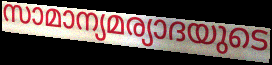
സാമാന്യമര്യാദയുടെ